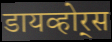
डायव्होर्स